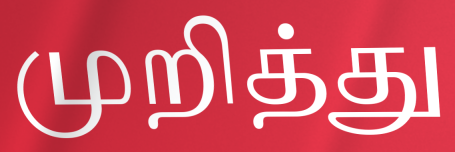
முறித்து